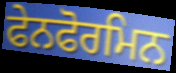
ਫੇਨਫੋਰਮਿਨ